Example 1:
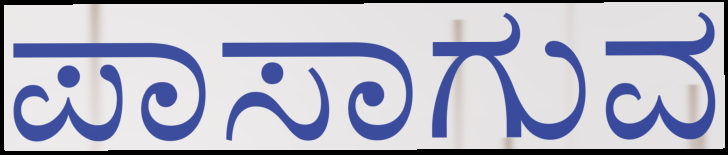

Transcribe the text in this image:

ಪಾಸಾಗುವ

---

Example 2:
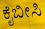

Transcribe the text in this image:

ಕೈಬೀಸಿ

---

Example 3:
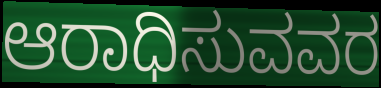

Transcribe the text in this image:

ಆರಾಧಿಸುವವರ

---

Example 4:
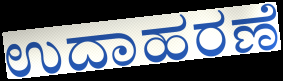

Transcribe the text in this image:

ಉದಾಹರಣೆ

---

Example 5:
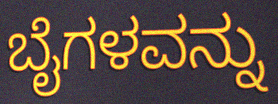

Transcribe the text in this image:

ಬೈಗಳವನ್ನು